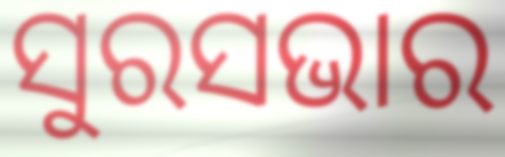
ସୁରସଭାର